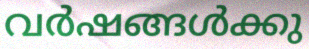
വർഷങ്ങൾക്കു